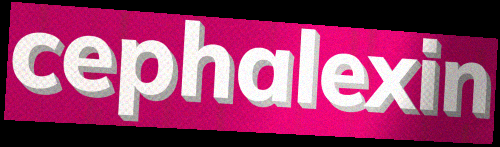
cephalexin